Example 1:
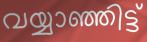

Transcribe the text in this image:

വയ്യാഞ്ഞിട്ട്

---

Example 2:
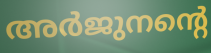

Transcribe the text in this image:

അർജുനന്റെ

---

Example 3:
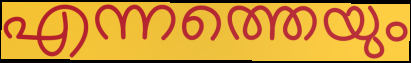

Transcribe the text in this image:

എന്നത്തെയും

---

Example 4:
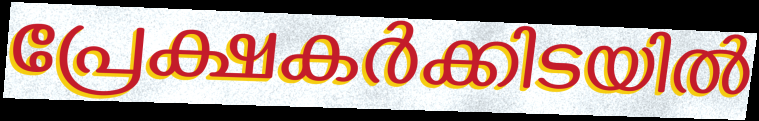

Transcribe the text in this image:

പ്രേക്ഷകർക്കിടയിൽ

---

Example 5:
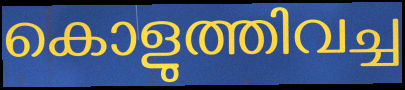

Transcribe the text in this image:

കൊളുത്തിവച്ച